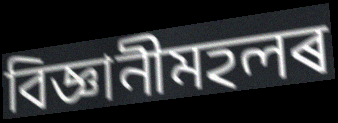
বিজ্ঞানীমহলৰ